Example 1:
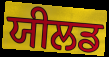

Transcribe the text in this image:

ਯੀਲਡ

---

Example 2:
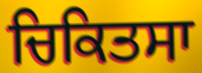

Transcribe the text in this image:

ਚਿਕਿਤਸਾ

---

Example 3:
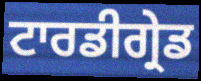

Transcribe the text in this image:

ਟਾਰਡੀਗ੍ਰੇਡ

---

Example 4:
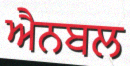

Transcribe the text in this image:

ਐਨਬਲ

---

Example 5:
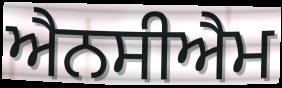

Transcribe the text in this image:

ਐਨਸੀਐਮ